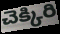
చెక్కిరి